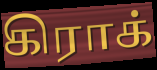
கிராக்